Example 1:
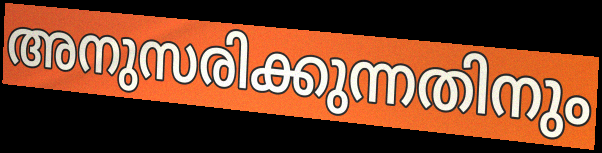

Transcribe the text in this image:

അനുസരിക്കുന്നതിനും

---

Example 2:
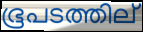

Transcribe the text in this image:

ഭൂപടത്തില്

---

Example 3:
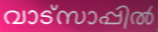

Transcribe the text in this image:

വാട്സാപ്പിൽ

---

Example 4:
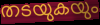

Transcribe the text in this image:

തടയുകയും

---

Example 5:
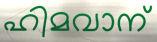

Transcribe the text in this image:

ഹിമവാന്